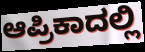
ಆಪ್ರಿಕಾದಲ್ಲಿ